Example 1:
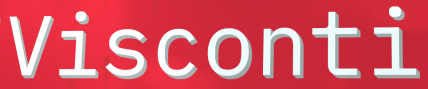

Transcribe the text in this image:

Visconti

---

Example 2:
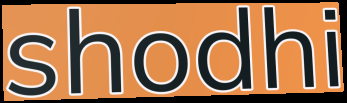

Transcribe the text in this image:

shodhi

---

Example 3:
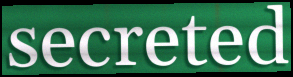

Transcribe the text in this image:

secreted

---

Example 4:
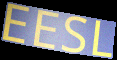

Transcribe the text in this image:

EESL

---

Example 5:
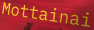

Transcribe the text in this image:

Mottainai